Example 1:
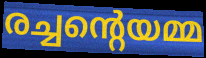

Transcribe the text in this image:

രച്ചന്റെയമ്മ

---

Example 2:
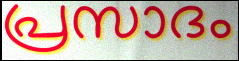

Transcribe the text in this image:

പ്രസാദം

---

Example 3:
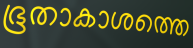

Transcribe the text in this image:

ഭൂതാകാശത്തെ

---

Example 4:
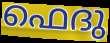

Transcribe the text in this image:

ഫെദു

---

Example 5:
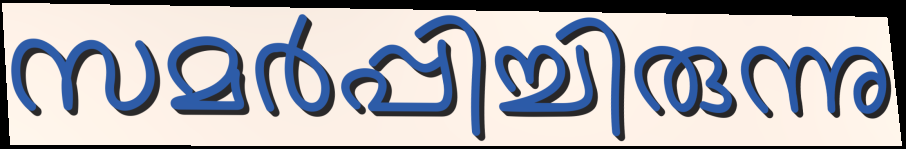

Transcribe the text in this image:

സമർപ്പിച്ചിരുന്നു